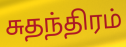
சுதந்திரம்